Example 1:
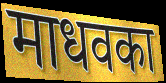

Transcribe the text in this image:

माधवका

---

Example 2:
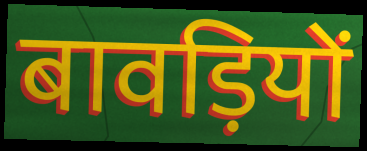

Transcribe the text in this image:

बावड़ियों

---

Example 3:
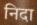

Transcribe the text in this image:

निदा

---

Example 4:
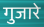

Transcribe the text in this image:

गुजारे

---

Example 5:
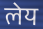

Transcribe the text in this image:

लेय